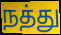
நத்து